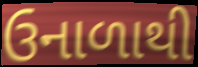
ઉનાળાથી